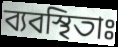
ব্যবস্থিতাঃ